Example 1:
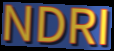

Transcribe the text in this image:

NDRI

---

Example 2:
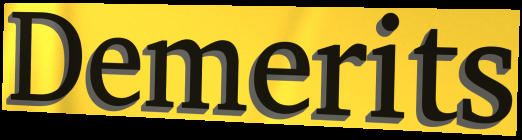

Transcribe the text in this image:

Demerits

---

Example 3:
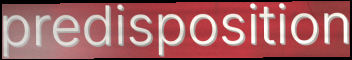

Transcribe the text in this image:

predisposition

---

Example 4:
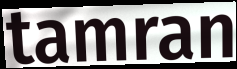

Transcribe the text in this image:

tamran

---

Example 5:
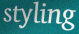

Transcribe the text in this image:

styling